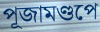
পূজামণ্ডপে